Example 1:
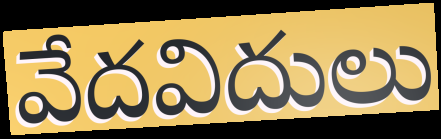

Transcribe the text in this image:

వేదవిదులు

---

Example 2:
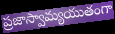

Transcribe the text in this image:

ప్రజాస్వామ్యయుతంగా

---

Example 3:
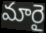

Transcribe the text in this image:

మారై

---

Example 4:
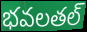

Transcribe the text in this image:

భవలతల్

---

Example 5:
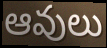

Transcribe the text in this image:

ఆవులు